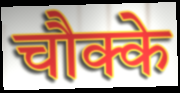
चौक्के